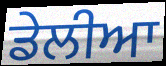
ਡੇਲੀਆ